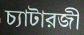
চ্যাটারজী